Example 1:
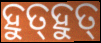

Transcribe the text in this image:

ହୁତ୍‌ହୁତ୍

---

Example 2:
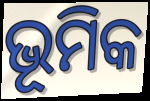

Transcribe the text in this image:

ଭୂମିକ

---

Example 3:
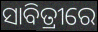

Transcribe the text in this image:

ସାବିତ୍ରୀରେ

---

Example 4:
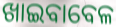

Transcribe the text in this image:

ଖାଇବାବେଳ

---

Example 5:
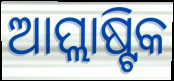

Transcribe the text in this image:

ଆପ୍ଲାଷ୍ଟିକ